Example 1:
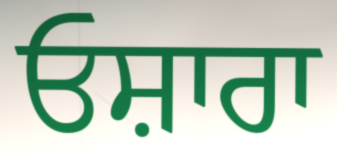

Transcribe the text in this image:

ਓਸ਼ਾਰਾ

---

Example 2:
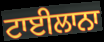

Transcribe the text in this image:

ਟਾਈਲਾਨਾ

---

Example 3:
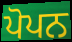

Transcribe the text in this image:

ਪੋਪਨ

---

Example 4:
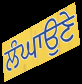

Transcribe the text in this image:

ਲੰਘਾਉਣੇ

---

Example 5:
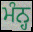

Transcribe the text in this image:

ਮੰਨ੍ਹ